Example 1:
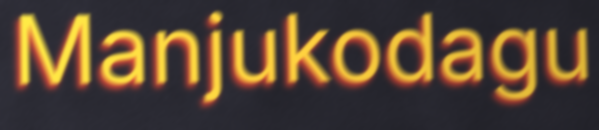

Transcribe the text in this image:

Manjukodagu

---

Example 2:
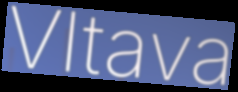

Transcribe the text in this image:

Vltava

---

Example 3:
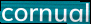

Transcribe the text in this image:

cornual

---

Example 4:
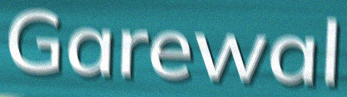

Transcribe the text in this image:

Garewal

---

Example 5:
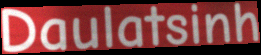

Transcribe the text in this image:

Daulatsinh